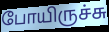
போயிருச்சு